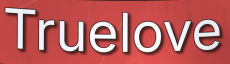
Truelove